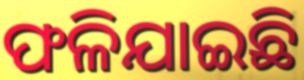
ଫଳିଯାଇଛି